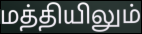
மத்தியிலும்